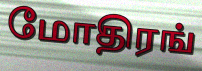
மோதிரங்